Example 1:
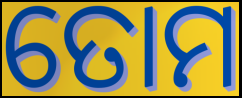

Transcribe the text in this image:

ତୋମ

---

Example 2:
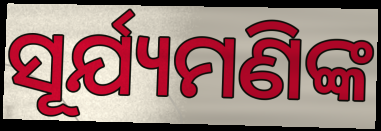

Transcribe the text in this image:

ସୂର୍ଯ୍ୟମଣିଙ୍କ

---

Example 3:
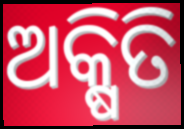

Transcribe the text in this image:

ଅକ୍ଷିତି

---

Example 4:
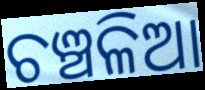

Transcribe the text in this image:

ଚଞ୍ଚଳିଆ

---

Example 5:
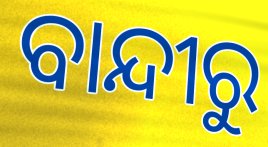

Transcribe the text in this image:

ବାନ୍ଦୀରୁ